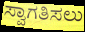
ಸ್ವಾಗತಿಸಲು